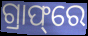
ଗ୍ରାଫ୍‌ରେ